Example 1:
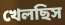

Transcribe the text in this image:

খেলছিস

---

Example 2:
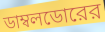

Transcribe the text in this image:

ডাম্বলডোরের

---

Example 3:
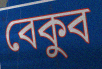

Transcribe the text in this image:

বেকুব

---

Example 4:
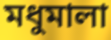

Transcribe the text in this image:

মধুমালা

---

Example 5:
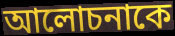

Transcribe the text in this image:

আলোচনাকে